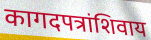
कागदपत्रांशिवाय